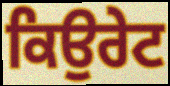
ਕਿਉਰੇਟ